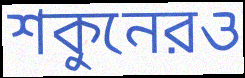
শকুনেরও